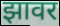
झावर